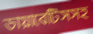
ডায়াবেটিসসহ